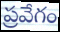
ప్రవేగం